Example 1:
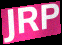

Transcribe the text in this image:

JRP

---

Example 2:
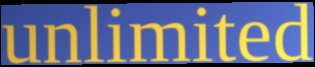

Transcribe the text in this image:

unlimited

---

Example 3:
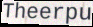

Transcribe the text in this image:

Theerpu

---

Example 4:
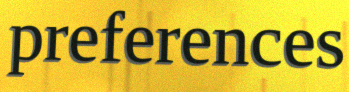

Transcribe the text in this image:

preferences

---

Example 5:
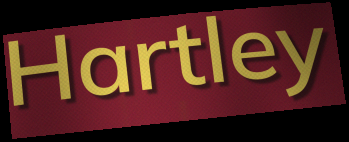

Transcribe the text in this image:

Hartley